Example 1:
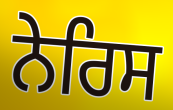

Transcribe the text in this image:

ਨੇਰਿਸ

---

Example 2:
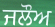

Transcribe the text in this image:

ਜਲੌਅ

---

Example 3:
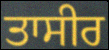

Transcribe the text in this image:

ਤਾਸੀਰ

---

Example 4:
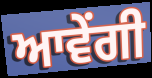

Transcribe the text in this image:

ਆਵੇਂਗੀ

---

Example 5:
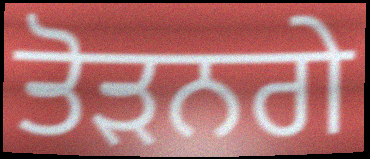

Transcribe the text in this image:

ਤੋੜਨਗੇ